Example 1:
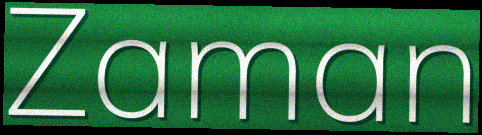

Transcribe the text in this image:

Zaman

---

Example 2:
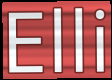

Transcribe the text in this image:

Elli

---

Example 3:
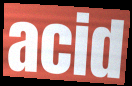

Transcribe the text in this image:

acid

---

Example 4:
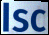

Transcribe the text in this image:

Isc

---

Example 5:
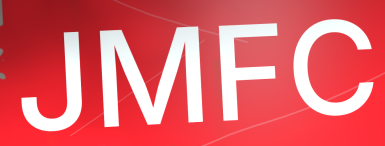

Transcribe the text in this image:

JMFC